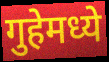
गुहेमध्ये